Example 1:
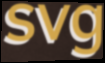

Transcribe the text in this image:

svg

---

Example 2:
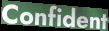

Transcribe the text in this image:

Confident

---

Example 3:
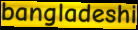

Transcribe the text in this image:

bangladeshi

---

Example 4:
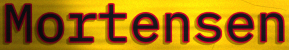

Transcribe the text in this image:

Mortensen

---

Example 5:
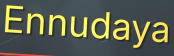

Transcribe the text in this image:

Ennudaya